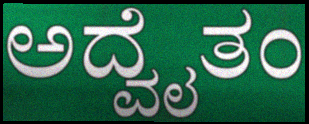
ಅದ್ವೈತಂ